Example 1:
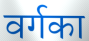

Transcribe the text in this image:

वर्गका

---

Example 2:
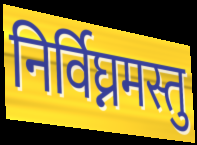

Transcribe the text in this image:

निर्विघ्नमस्तु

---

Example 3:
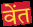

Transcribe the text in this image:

वेंत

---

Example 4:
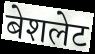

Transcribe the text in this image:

बेशलेट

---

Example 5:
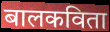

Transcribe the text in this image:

बालकविता